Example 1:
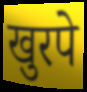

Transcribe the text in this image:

खुरपे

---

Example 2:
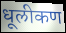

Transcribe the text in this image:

धूलीकण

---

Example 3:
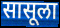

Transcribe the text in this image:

सासूला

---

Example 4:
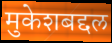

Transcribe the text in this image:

मुकेशबद्दल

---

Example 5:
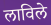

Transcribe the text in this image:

लाविले